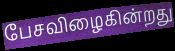
பேசவிழைகின்றது